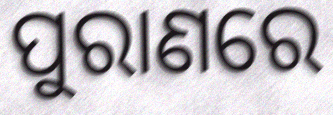
ପୁରାଣରେ